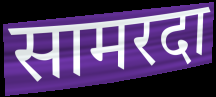
सामरदा